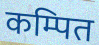
कम्पित